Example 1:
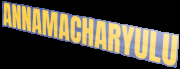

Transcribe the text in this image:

ANNAMACHARYULU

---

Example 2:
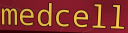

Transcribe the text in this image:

medcell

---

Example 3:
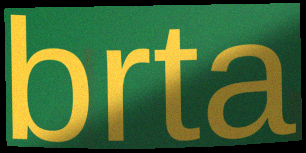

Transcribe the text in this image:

brta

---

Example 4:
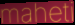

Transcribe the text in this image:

maheti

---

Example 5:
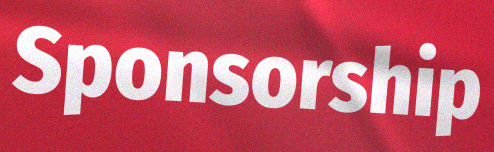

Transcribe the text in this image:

Sponsorship